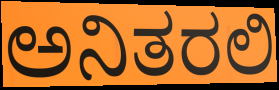
ಅನಿತರಲಿ